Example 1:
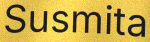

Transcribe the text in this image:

Susmita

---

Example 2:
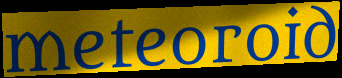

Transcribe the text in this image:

meteoroid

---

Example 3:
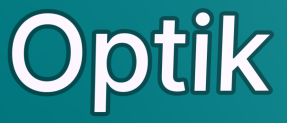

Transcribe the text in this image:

Optik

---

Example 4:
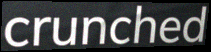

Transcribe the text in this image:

crunched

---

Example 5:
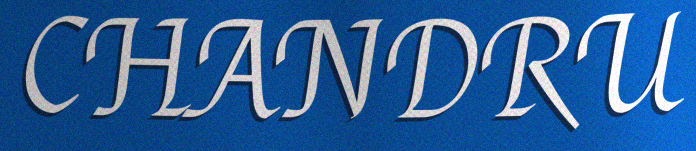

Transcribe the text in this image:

CHANDRU